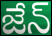
జేన్